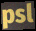
psl